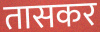
तासकर